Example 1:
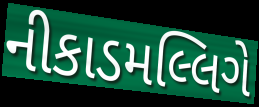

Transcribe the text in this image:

નીકાડમલ્લિગે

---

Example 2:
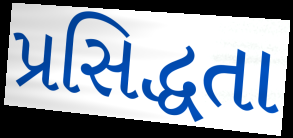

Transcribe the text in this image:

પ્રસિદ્ધતા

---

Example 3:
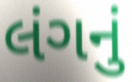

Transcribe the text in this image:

લંગનું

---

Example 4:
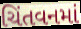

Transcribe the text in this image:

ચિંતવનમાં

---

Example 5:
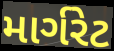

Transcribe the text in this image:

માર્ગરેટ